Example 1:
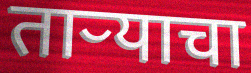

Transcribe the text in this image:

ताऱ्याचा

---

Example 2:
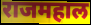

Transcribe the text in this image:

राजमहाल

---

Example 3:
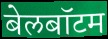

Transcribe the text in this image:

बेलबॉटम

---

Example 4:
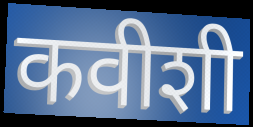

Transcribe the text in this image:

कवीशी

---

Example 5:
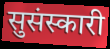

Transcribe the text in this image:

सुसंस्कारी